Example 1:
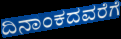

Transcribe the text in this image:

ದಿನಾಂಕದವರೆಗೆ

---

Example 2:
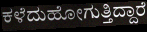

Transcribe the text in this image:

ಕಳೆದುಹೋಗುತ್ತಿದ್ದಾರೆ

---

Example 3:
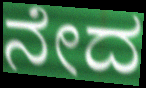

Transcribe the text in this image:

ನೇದ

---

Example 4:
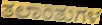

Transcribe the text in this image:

ತಲಾಂತುಗಳ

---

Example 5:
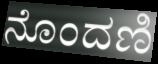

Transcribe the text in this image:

ನೊಂದಣಿ